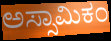
ಅಸ್ಸಾಮಿಕಂ